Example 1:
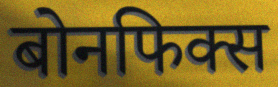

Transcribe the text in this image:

बोनफिक्स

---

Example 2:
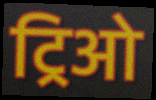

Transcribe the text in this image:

ट्रिओ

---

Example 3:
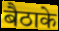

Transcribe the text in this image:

बैठाके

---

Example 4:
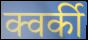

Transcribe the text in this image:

क्वर्की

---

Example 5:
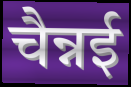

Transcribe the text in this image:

चैन्नई